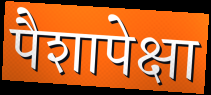
पैशापेक्षा